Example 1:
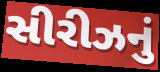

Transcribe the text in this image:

સીરીઝનું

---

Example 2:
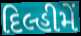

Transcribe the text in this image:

દિલ્હીમેં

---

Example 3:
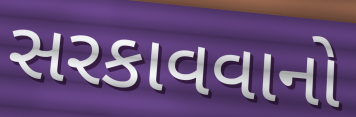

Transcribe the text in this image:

સરકાવવાનો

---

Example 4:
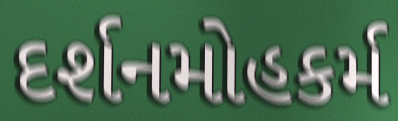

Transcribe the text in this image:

દર્શનમોહકર્મ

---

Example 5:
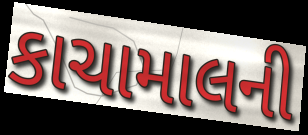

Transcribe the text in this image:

કાચામાલની